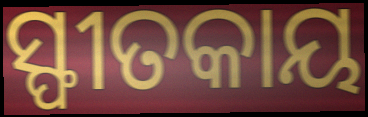
ସ୍ଫୀତକାୟ